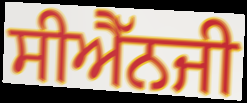
ਸੀਐੱਨਜੀ